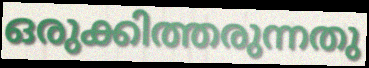
ഒരുക്കിത്തരുന്നതു